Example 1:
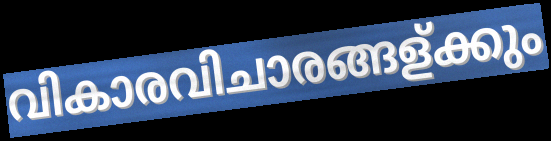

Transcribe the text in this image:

വികാരവിചാരങ്ങള്ക്കും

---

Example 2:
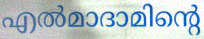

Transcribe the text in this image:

എൽമാദാമിന്റെ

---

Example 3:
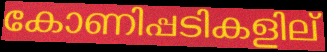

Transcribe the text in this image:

കോണിപ്പടികളില്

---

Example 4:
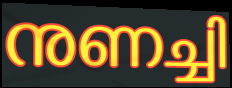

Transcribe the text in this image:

നുണച്ചി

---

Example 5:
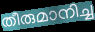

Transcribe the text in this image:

തീരുമാനിച്ച